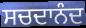
ਸਚਦਾਨੰਦ